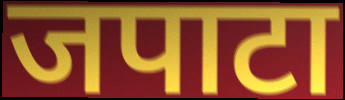
जपाटा